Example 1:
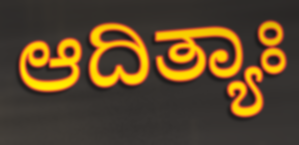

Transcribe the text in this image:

ಆದಿತ್ಯಾಃ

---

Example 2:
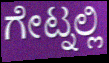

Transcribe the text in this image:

ಗೇಟ್ನಲ್ಲಿ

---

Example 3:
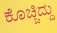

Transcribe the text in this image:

ಕೊಚ್ಚಿದ್ದು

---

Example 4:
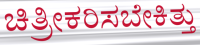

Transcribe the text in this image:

ಚಿತ್ರೀಕರಿಸಬೇಕಿತ್ತು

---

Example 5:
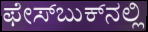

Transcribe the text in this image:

ಫೇಸ್‌ಬುಕ್‌ನಲ್ಲಿ